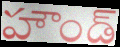
హౌండ్